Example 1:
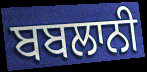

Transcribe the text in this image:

ਬਬਲਾਨੀ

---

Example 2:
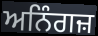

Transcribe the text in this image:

ਅਨਿੰਗਜ਼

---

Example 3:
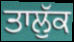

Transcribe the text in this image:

ਤਾਲੁੱਕ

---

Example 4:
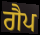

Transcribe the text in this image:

ਗੈਪ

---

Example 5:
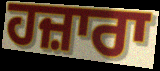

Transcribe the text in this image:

ਹਜ਼ਾਰਾ